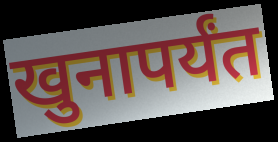
खुनापर्यंत